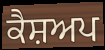
ਕੈਸ਼ਅਪ